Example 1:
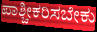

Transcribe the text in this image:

ಪಾಶ್ಚೀಕರಿಸಬೇಕು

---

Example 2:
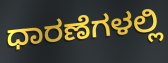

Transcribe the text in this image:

ಧಾರಣೆಗಳಲ್ಲಿ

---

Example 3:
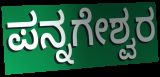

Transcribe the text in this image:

ಪನ್ನಗೇಶ್ವರ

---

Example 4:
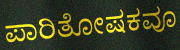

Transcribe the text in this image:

ಪಾರಿತೋಷಕವೂ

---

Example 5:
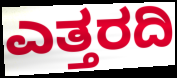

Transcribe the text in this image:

ಎತ್ತರದಿ